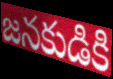
జనకుడికి